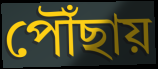
পৌঁছায়